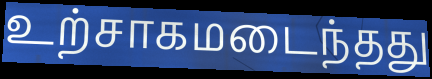
உற்சாகமடைந்தது